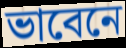
ভাবেনে